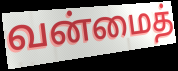
வன்மைத்